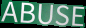
ABUSE